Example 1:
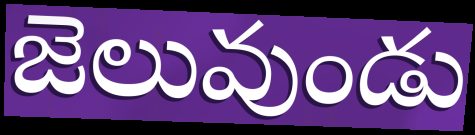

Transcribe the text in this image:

జెలువుండు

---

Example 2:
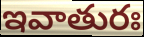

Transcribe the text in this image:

ఇవాతురః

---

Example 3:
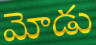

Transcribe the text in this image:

మోడు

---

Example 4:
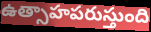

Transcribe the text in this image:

ఉత్సాహపరుస్తుంది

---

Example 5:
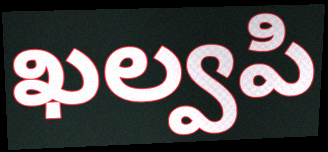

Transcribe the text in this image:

ఖల్వపి